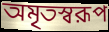
অমৃতস্বরূপ